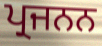
ਪ੍ਰਜਨਨ